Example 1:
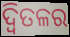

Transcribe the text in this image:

ଦ୍ୱିତଳର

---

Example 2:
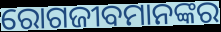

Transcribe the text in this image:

ରୋଗଜୀବମାନଙ୍କର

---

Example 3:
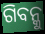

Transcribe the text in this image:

ଗିବନ୍କୁ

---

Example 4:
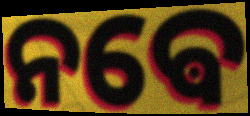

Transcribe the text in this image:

ନଵେ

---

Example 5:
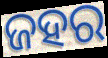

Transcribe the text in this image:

ଜହର